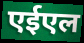
एईएल